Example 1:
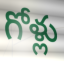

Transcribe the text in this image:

గోళ్లు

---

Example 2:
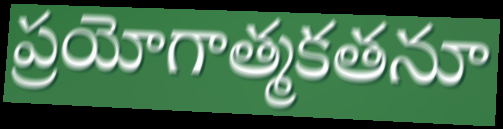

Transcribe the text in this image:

ప్రయోగాత్మకతనూ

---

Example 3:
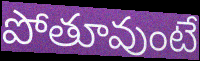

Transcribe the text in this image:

పోతూవుంటే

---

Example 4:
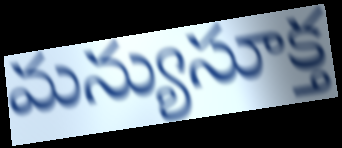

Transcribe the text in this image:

మన్యుసూక్త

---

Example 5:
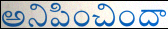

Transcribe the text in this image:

అనిపించిందా